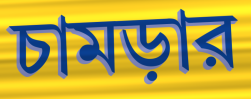
চামড়ার